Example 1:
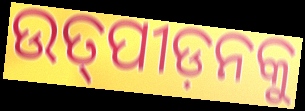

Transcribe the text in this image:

ଉତ୍‌ପୀଡ଼ନକୁ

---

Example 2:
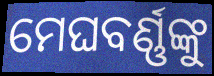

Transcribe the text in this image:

ମେଘବର୍ଣ୍ଣଙ୍କୁ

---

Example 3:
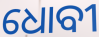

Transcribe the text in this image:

ଧୋବୀ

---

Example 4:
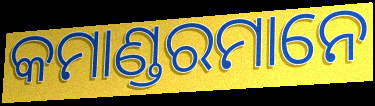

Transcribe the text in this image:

କମାଣ୍ଡରମାନେ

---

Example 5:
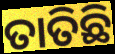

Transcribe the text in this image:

ତାତିଛି